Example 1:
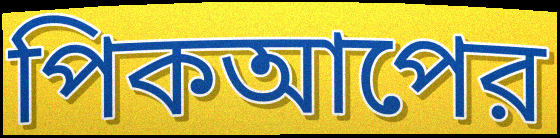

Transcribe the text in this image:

পিকআপের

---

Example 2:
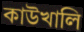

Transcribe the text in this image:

কাউখালি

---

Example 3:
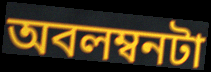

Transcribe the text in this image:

অবলম্বনটা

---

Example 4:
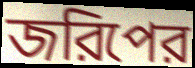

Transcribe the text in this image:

জরিপের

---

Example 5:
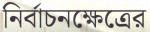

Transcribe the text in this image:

নির্বাচনক্ষেত্রের